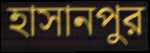
হাসানপুর